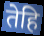
तेहि